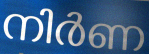
നിർണ